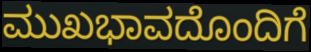
ಮುಖಭಾವದೊಂದಿಗೆ